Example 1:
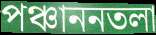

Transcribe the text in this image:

পঞ্চাননতলা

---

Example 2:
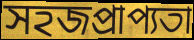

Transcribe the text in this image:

সহজপ্রাপ্যতা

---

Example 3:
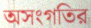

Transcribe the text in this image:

অসংগতির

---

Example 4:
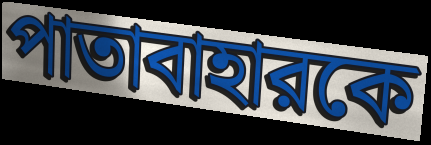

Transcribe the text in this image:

পাতাবাহারকে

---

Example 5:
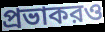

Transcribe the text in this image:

প্রভাকরও